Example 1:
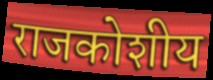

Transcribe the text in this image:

राजकोशीय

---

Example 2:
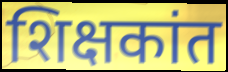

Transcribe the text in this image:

शिक्षकांत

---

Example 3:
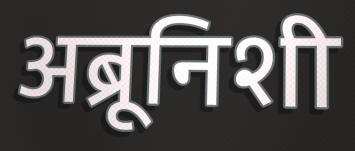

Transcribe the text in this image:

अब्रूनिशी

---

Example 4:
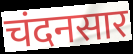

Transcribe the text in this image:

चंदनसार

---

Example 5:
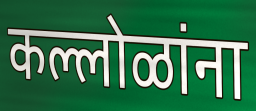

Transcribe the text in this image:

कल्लोळांना